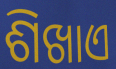
ଶିଖାଏ